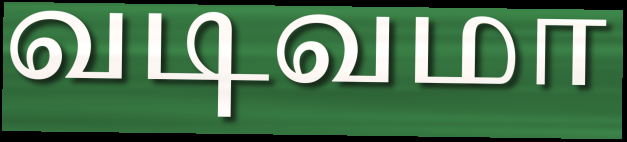
வடிவமா